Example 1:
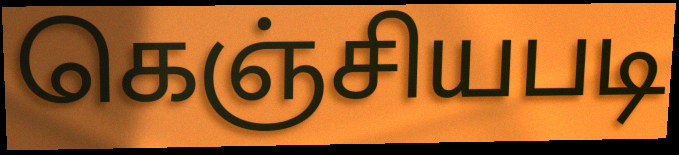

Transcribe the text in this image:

கெஞ்சியபடி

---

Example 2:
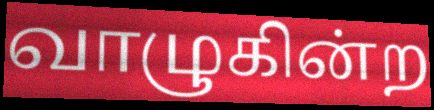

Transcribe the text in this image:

வாழுகின்ற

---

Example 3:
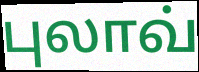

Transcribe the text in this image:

புலாவ்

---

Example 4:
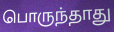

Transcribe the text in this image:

பொருந்தாது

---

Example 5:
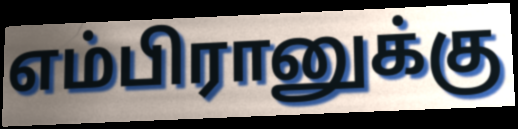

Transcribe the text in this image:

எம்பிரானுக்கு